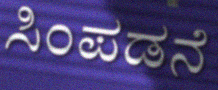
ಸಿಂಪಡನೆ